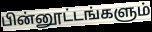
பின்னூட்டங்களும்